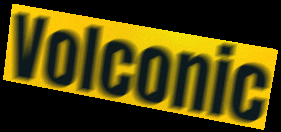
Volconic